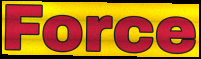
Force